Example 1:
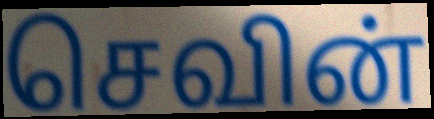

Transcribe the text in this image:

செவின்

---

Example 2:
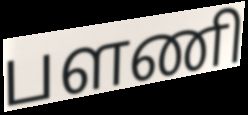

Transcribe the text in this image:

பளணி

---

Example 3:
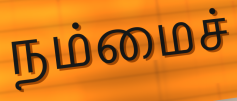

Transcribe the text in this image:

நம்மைச்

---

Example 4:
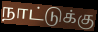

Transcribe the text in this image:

நாட்டுக்கு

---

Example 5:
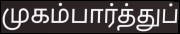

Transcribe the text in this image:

முகம்பார்த்துப்